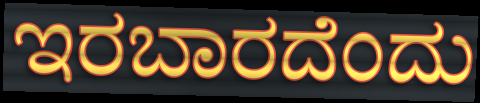
ಇರಬಾರದೆಂದು